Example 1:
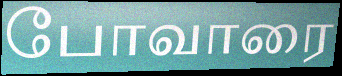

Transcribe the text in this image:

போவாரை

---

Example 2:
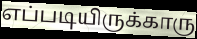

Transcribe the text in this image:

எப்படியிருக்காரு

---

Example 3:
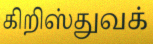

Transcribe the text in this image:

கிறிஸ்துவக்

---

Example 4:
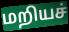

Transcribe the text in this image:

மறியச்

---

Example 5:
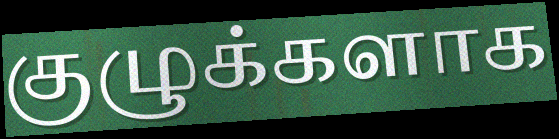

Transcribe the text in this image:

குழுக்களாக